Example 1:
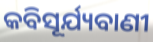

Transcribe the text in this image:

କବିସୂର୍ଯ୍ୟବାଣୀ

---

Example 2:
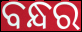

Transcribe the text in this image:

ବନ୍ଧର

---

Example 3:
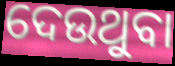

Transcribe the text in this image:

ଦେଉଥୁବା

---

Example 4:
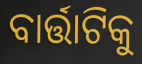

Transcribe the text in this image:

ବାର୍ତ୍ତାଟିକୁ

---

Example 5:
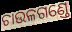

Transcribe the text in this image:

ଚାଉଳଗଣ୍ଡେ